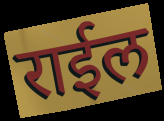
राईल